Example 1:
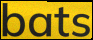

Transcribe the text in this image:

bats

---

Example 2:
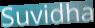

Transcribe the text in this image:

Suvidha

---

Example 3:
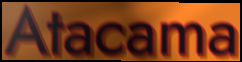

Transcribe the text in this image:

Atacama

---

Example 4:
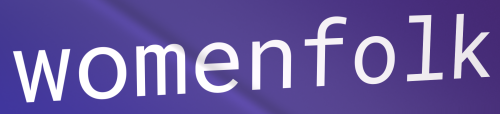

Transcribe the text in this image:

womenfolk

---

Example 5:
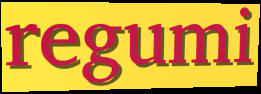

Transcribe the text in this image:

regumi